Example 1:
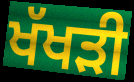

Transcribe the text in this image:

ਖੱਖੜੀ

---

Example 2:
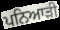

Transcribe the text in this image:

ਪਨਿਆੜੀ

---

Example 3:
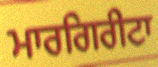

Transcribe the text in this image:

ਮਾਰਗਿਰੀਟਾ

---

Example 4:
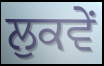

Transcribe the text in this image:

ਲੁਕਵੇਂ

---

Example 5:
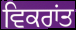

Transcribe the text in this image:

ਵਿਕਰਾਂਤ